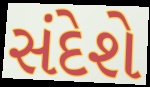
સંદેશે